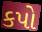
કપો